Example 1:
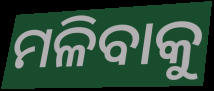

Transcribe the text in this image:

ମଳିବାକୁ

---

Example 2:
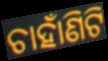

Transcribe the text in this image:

ଚାହାଁଣିଟି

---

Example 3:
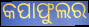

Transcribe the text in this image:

କପାଫୁଲର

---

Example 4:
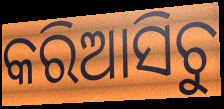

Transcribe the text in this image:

କରିଆସିଚୁ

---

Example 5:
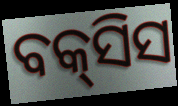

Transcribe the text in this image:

ବକ୍‍ସିସ